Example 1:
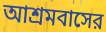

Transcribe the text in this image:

আশ্রমবাসের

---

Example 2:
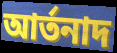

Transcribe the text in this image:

আর্তনাদ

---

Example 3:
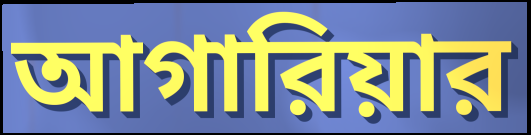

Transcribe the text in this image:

আগারিয়ার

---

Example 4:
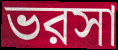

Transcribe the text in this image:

ভরসা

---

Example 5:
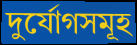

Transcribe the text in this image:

দুর্যোগসমূহ